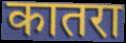
कातरा